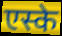
एस्के